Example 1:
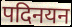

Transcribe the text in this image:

पदिनयन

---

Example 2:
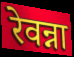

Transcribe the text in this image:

रेवन्ना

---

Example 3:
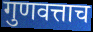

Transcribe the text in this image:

गुणवत्ताच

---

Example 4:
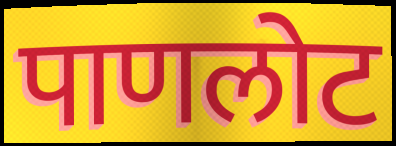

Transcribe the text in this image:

पाणलोट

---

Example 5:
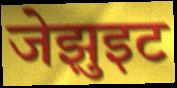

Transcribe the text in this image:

जेझुइट